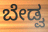
ಬೇಡ್ವ